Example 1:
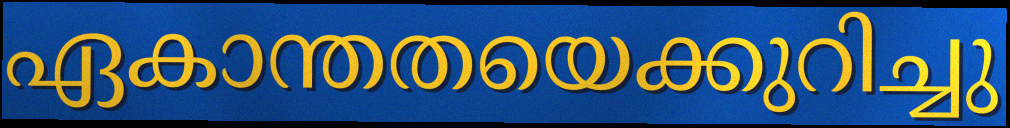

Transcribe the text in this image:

ഏകാന്തതയെക്കുറിച്ചു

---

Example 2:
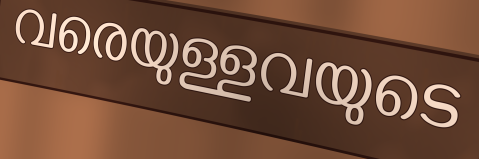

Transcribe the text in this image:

വരെയുള്ളവയുടെ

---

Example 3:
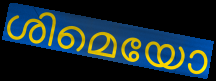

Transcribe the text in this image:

ശിമെയോ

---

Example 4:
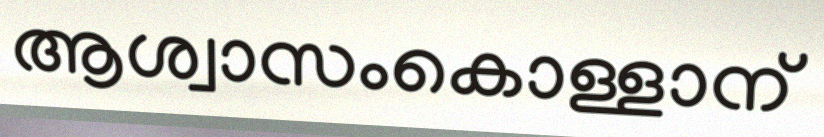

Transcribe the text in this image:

ആശ്വാസംകൊള്ളാന്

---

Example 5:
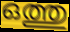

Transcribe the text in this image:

ഒത്തു